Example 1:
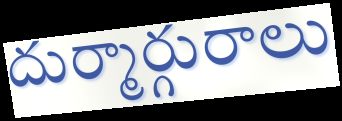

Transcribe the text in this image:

దుర్మార్గురాలు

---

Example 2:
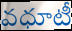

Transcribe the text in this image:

వధూటీ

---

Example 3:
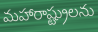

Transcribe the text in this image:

మహారాష్ట్రులను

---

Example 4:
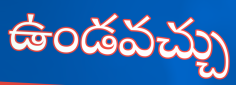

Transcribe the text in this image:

ఉండవచ్చు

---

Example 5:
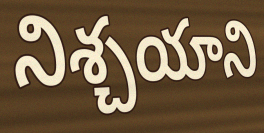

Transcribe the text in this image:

నిశ్చయాని